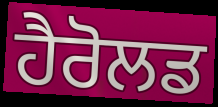
ਹੈਰੋਲਡ